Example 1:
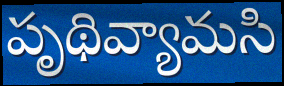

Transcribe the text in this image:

పృథివ్యామసి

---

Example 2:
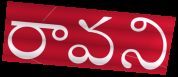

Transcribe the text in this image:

రావని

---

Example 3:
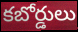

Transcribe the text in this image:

కబోర్డులు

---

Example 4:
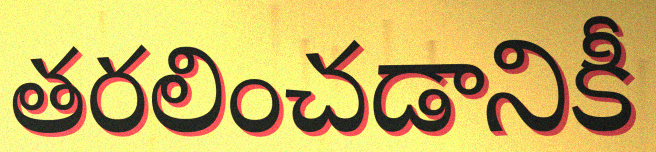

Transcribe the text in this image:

తరలించడానికీ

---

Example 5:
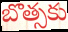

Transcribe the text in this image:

బొత్సకు